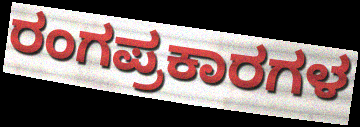
ರಂಗಪ್ರಕಾರಗಳ